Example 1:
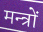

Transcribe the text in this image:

मन्त्रों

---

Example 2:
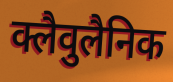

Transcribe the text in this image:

क्लैवुलैनिक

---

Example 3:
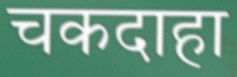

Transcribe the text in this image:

चकदाहा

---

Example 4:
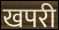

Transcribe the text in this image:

खपरी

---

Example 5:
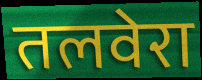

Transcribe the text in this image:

तलवेरा